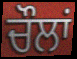
ਚੌਲਾਂ